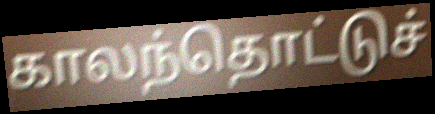
காலந்தொட்டுச்